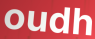
oudh